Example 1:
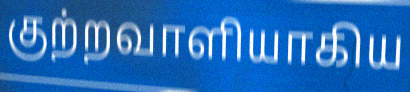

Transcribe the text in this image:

குற்றவாளியாகிய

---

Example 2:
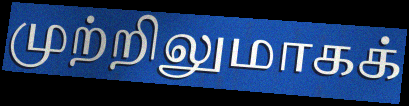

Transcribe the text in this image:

முற்றிலுமாகக்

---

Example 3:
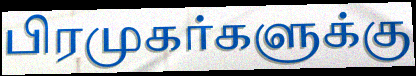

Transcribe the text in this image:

பிரமுகர்களுக்கு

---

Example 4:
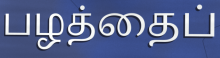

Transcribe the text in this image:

பழத்தைப்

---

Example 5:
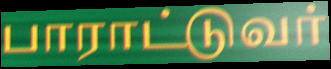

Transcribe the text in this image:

பாராட்டுவர்